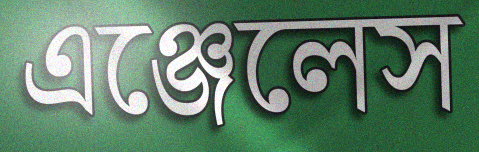
এঞ্জেলেস